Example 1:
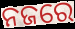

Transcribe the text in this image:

ନଜରେ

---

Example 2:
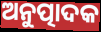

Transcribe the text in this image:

ଅନୁତ୍ପାଦକ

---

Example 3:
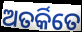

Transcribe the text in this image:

ଅତର୍କିତେ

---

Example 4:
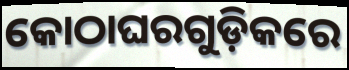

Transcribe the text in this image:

କୋଠାଘରଗୁଡ଼ିକରେ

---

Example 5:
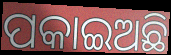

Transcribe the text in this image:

ପକାଇଅଛି